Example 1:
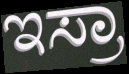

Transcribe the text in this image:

ಇಸ್ರಾ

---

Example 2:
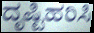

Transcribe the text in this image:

ದೃಷ್ಟಿಹರಿಸಿ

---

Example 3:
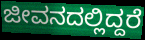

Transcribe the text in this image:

ಜೀವನದಲ್ಲಿದ್ದರೆ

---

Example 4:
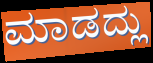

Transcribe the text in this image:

ಮಾಡದ್ಲು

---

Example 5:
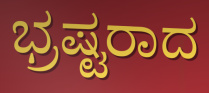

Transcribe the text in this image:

ಭ್ರಷ್ಟರಾದ